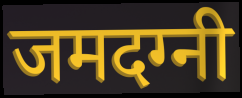
जमदग्नी